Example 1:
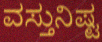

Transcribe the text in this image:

ವಸ್ತುನಿಷ್ಟ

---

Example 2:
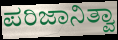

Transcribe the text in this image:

ಪರಿಜಾನಿತ್ವಾ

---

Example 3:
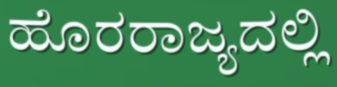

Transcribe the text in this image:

ಹೊರರಾಜ್ಯದಲ್ಲಿ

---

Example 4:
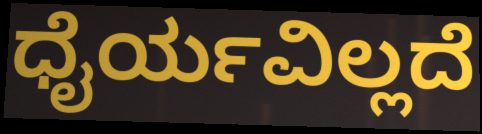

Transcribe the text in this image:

ಧೈರ್ಯವಿಲ್ಲದೆ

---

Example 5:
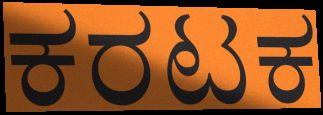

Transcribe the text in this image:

ಕರಟಕ